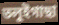
তলুইগাছা